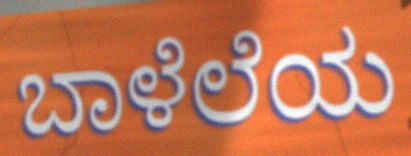
ಬಾಳೆಲೆಯ